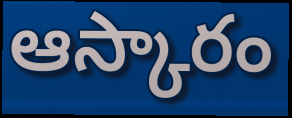
ఆస్కారం